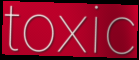
toxic